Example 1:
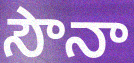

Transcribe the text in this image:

సౌనా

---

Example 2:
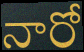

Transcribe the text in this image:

నారో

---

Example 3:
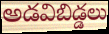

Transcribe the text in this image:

అడవిబిడ్డలు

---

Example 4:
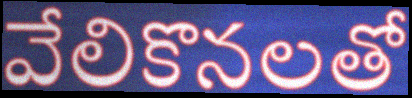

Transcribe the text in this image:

వేలికొనలతో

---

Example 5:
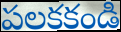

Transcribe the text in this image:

పలకకండి